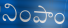
నింపాం